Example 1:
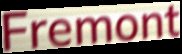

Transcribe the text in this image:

Fremont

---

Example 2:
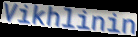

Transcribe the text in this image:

Vikhlinin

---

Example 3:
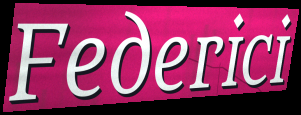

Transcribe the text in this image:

Federici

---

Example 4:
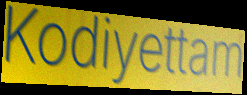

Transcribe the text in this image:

Kodiyettam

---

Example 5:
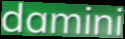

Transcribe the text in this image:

damini